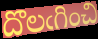
దొలఁగించి